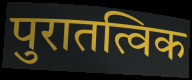
पुरातत्विक